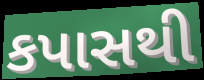
કપાસથી